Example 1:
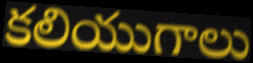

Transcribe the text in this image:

కలియుగాలు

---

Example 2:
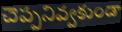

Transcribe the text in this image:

చెప్పనివ్వకుండా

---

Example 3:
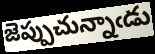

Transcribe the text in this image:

జెప్పుచున్నాఁడు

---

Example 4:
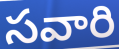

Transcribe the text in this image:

సవారి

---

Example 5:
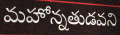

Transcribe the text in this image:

మహోన్నతుడవని